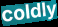
coldly